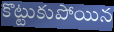
కొట్టుకుపోయిన